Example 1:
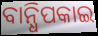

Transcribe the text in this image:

ବାନ୍ଧିପକାଇ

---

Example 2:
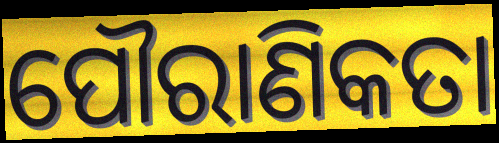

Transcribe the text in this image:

ପୌରାଣିକତା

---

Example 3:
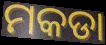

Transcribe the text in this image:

ମକଡା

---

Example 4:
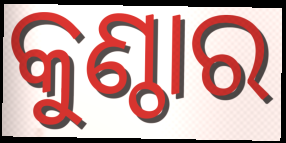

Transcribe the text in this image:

କୁଣ୍ଠାର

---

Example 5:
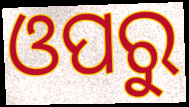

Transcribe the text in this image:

ଓପରୁ